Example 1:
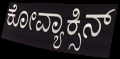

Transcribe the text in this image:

ಕೋವ್ಯಾಕ್ಸಿನ್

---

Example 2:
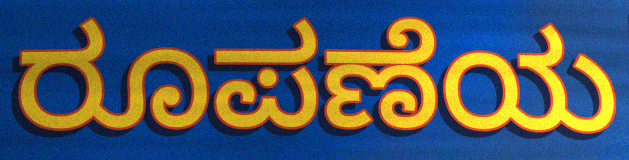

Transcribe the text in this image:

ರೂಪಣೆಯ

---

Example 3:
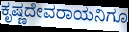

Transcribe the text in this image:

ಕೃಷ್ಣದೇವರಾಯನಿಗೂ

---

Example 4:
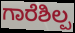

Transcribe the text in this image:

ಗಾರೆಶಿಲ್ಪ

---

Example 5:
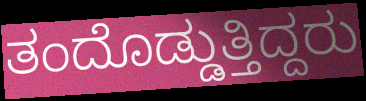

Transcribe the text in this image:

ತಂದೊಡ್ಡುತ್ತಿದ್ದರು